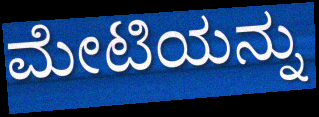
ಮೇಟಿಯನ್ನು